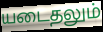
யடைதலும்